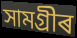
সামগ্ৰীৰ